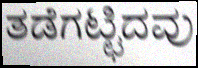
ತಡೆಗಟ್ಟಿದವು